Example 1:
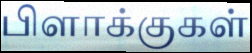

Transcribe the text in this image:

பிளாக்குகள்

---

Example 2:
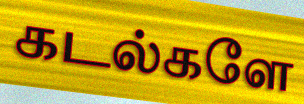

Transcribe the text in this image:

கடல்களே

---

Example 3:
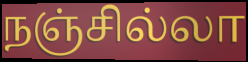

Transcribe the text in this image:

நஞ்சில்லா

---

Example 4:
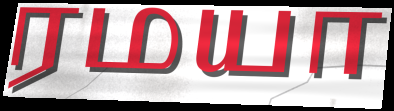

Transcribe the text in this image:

ரமயா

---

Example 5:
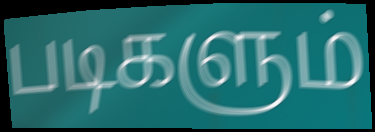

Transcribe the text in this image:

படிகளும்